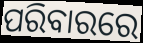
ପରିବାରରେ